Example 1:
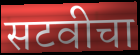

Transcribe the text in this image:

सटवीचा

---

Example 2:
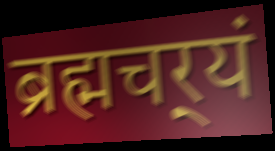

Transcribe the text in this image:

ब्रह्मचर्यं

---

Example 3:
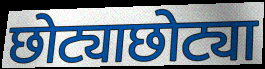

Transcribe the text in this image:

छोट्याछोट्या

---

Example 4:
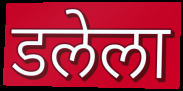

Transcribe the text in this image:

डलेला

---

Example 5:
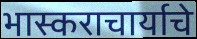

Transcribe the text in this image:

भास्कराचार्याचे